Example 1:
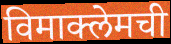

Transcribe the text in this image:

विमाक्लेमची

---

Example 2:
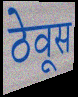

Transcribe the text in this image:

ठेवूस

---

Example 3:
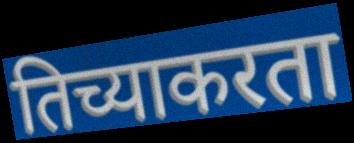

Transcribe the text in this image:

तिच्याकरता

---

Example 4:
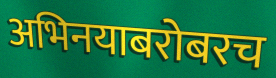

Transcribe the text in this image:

अभिनयाबरोबरच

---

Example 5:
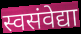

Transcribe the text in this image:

स्वसंवेद्या